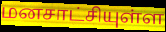
மனசாட்சியுள்ள